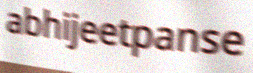
abhijeetpanse